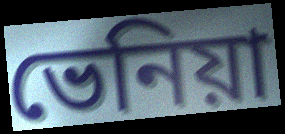
ভেনিয়া